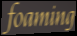
foaming